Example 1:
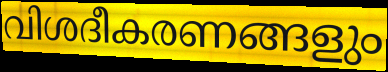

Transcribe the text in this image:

വിശദീകരണങ്ങളും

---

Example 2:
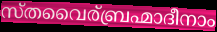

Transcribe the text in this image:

സ്തവൈര്ബ്രഹ്മാദീനാം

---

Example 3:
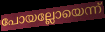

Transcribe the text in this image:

പോയല്ലോയെന്ന്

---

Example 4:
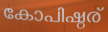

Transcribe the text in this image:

കോപിഷ്ഠര്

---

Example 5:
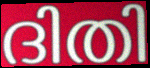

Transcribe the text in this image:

ദിതി